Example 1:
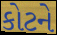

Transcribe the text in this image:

કોટને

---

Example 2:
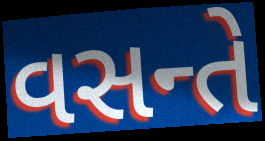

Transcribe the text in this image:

વસન્તે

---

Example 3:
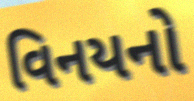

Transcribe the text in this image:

વિનયનો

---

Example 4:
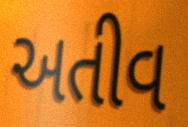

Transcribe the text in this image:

અતીવ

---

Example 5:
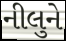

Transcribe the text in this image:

નીલુને